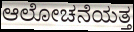
ಆಲೋಚನೆಯತ್ತ